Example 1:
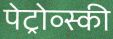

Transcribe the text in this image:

पेट्रोव्स्की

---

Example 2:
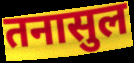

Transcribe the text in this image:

तनासुल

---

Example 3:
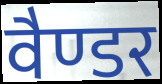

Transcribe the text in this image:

वैण्डर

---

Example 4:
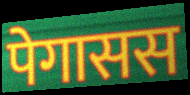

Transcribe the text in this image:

पेगासस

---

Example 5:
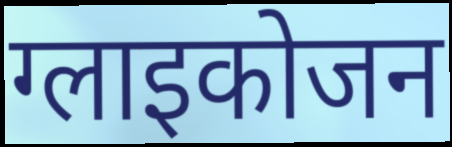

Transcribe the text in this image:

ग्लाइकोजन